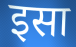
इसा